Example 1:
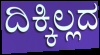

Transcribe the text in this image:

ದಿಕ್ಕಿಲ್ಲದ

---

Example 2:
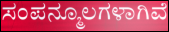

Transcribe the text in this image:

ಸಂಪನ್ಮೂಲಗಳಾಗಿವೆ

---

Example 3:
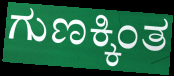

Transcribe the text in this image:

ಗುಣಕ್ಕಿಂತ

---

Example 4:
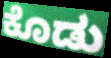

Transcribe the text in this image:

ಕೊಡು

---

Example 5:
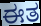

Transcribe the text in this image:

ಈತ